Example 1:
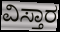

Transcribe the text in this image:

ವಿಸ್ತಾರ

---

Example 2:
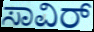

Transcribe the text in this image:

ಸಾವಿರ್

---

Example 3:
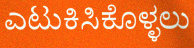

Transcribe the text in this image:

ಎಟುಕಿಸಿಕೊಳ್ಳಲು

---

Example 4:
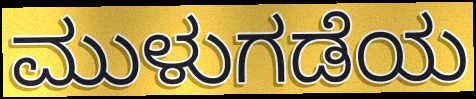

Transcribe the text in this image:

ಮುಳುಗಡೆಯ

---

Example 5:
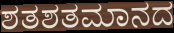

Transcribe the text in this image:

ಶತಶತಮಾನದ